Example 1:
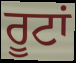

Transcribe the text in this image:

ਰੂਟਾਂ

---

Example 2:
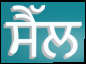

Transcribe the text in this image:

ਸੈੱਲ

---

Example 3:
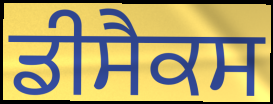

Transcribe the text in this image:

ਡੀਸੈਕਸ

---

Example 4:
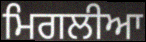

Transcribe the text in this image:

ਮਿਗਲੀਆ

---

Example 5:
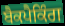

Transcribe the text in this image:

ਬੈਕਪੈਕਿੰਗ